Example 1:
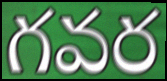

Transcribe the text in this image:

గవర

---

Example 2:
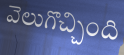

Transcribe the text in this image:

వెలుగొచ్చింది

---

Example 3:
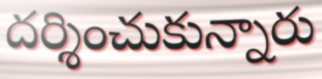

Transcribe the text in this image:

దర్శించుకున్నారు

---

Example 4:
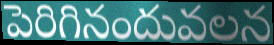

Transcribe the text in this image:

పెరిగినందువలన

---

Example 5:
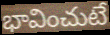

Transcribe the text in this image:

భావించుటే